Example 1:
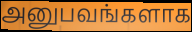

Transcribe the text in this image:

அனுபவங்களாக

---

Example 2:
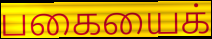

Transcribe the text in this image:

பகையைக்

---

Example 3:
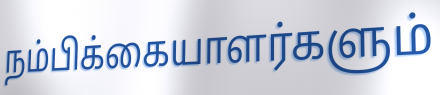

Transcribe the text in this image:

நம்பிக்கையாளர்களும்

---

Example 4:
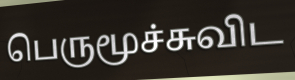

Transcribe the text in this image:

பெருமூச்சுவிட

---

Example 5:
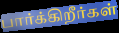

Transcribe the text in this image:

பார்க்கிறீர்கள்